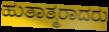
ಹುತಾತ್ಮರಾದರು